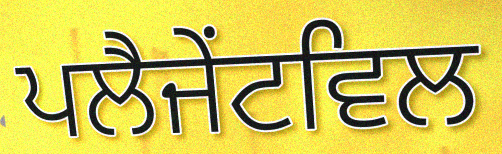
ਪਲੈਜੇਂਟਵਿਲ